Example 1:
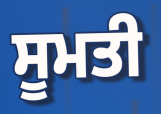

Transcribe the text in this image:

ਸੂਮਤੀ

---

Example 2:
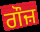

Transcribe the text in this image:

ਗੌਜ਼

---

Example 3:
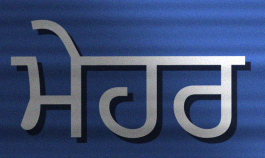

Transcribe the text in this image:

ਮੇਹਰ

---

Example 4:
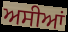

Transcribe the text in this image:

ਅਸੀਆਂ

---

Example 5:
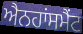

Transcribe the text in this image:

ਐਨਹਾਂਸਮੈਂਟ